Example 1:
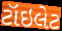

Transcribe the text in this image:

ટૉઇલેટ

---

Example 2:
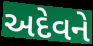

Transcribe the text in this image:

અદેવને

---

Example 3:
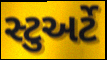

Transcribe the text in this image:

સ્ટુઅર્ટે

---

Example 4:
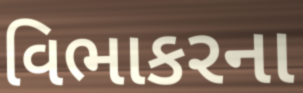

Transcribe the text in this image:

વિભાકરના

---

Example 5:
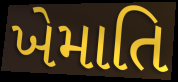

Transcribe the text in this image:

ખેમાતિ